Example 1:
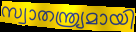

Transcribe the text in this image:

സ്വാതന്ത്ര്യമായി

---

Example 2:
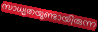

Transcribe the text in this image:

സാധ്യതയുണ്ടായിരുന്ന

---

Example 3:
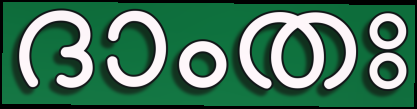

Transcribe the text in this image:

ദാംതഃ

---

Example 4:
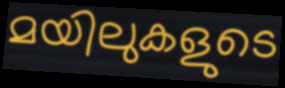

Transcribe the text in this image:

മയിലുകളുടെ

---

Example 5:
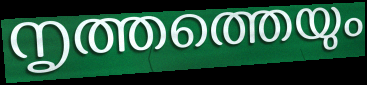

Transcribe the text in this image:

നൃത്തത്തെയും